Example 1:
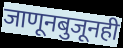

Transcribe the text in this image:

जाणूनबुजूनही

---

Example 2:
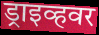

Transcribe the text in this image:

ड्राइव्हवर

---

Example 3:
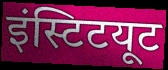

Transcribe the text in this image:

इंस्टिटयूट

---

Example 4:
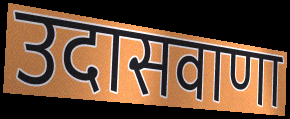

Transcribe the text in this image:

उदासवाणा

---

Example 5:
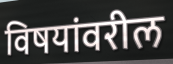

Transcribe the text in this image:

विषयांवरील